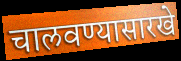
चालवण्यासारखे